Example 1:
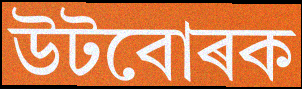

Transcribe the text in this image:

উটবোৰক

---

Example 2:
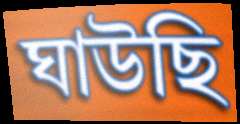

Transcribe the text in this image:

ঘাউছি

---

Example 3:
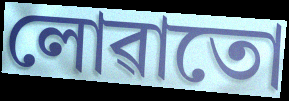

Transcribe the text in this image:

লোৱাতো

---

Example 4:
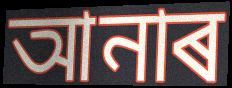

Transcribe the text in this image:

আনাৰ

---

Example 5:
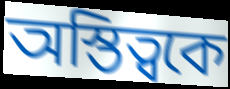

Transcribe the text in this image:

অস্তিত্বকে